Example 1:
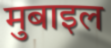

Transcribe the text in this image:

मुबाइल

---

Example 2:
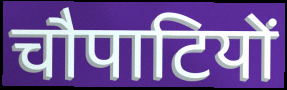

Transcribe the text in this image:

चौपाटियों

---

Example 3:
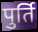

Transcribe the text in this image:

पुर्ति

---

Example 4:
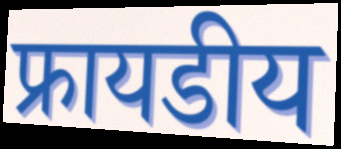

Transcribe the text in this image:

फ्रायडीय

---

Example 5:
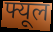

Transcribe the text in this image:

फ्यूल